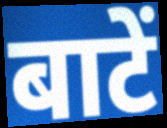
बाटें